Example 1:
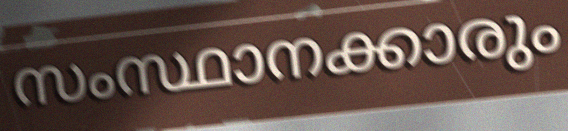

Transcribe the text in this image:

സംസ്ഥാനക്കാരും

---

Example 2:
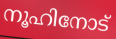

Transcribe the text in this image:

നൂഹിനോട്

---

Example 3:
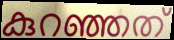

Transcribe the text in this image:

കുറഞ്ഞത്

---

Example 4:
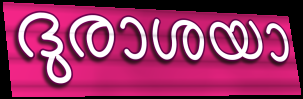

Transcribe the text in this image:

ദുരാശയാ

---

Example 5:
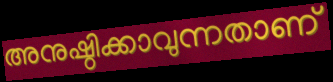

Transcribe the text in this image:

അനുഷ്ഠിക്കാവുന്നതാണ്